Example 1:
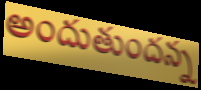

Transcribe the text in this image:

అందుతుందన్న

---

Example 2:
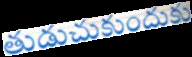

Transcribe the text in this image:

తుడుచుకుందుకు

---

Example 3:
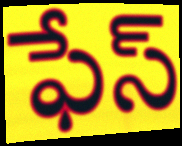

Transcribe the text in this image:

ఫేస్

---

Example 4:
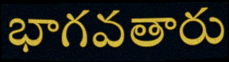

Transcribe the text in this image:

భాగవతారు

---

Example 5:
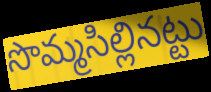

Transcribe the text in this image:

సొమ్మసిల్లినట్టు